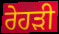
ਰੇਹੜੀ